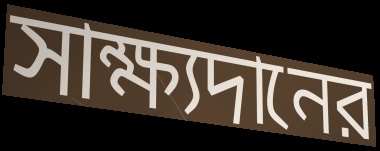
সাক্ষ্যদানের